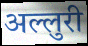
अल्लुरी